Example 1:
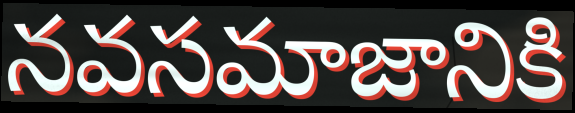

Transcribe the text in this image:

నవసమాజానికి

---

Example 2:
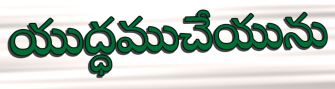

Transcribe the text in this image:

యుద్ధముచేయును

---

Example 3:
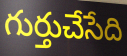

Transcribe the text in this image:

గుర్తుచేసేది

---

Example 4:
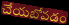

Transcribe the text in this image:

చేయబోవడం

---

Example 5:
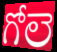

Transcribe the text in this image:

గోలె